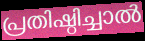
പ്രതിഷ്ഠിച്ചാൽ